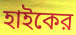
হাইকের